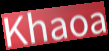
Khaoa